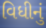
વિધીનું